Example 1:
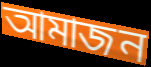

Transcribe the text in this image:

আমাজন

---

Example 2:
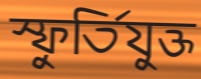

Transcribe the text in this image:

স্ফুর্তিযুক্ত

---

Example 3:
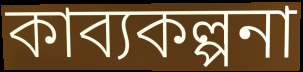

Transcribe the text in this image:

কাব্যকল্পনা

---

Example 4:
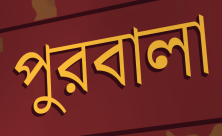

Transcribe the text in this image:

পুরবালা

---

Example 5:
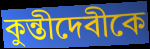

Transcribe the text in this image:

কুন্তীদেবীকে